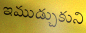
ఇముడ్చుకుని